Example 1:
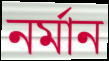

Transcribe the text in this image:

নর্মান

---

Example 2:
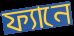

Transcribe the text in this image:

ফ্যানে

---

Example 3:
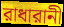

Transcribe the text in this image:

রাধারানী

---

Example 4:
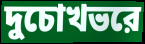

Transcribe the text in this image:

দুচোখভরে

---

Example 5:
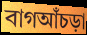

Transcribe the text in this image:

বাগআঁচড়া